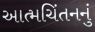
આત્મચિંતનનું